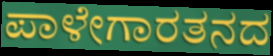
ಪಾಳೇಗಾರತನದ